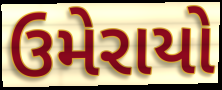
ઉમેરાયો